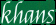
khans